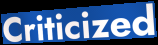
Criticized